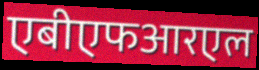
एबीएफआरएल